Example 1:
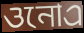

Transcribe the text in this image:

ওনোএ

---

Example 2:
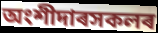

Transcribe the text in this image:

অংশীদাৰসকলৰ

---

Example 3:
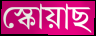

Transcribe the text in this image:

স্কোয়াছ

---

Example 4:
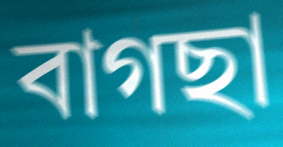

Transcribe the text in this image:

বাগছা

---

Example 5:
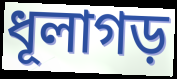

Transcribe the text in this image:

ধূলাগড়